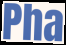
Pha